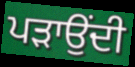
ਪੜਾਉਂਦੀ